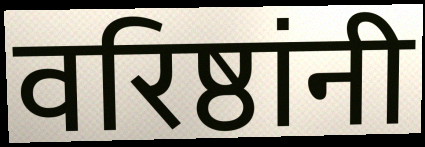
वरिष्ठांनी